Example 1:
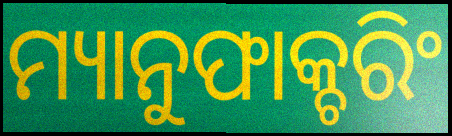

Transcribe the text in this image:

ମ୍ୟାନୁଫାକ୍ଚରିଂ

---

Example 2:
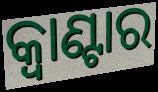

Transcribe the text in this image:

କ୍ୱାଣ୍ଟାର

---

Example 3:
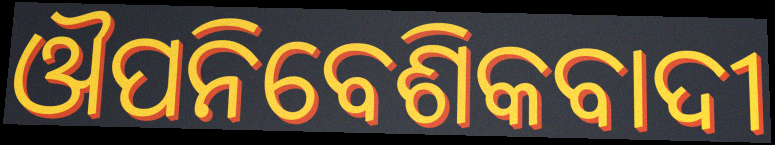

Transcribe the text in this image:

ଔପନିବେଶିକବାଦୀ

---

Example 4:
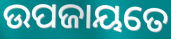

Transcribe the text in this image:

ଉପଜାୟତେ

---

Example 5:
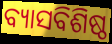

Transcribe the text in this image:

ବ୍ୟାସବିଶିଷ୍ଠ